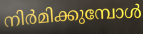
നിർമിക്കുമ്പോൾ